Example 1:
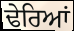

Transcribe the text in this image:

ਢੇਰਿਆਂ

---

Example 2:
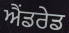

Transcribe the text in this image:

ਐਂਡਰੇਡ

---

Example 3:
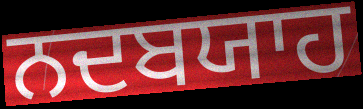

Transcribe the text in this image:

ਨਦਬਯਾਹ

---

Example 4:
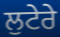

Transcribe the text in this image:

ਲੁਟੇਰੇ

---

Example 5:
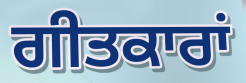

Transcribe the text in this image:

ਗੀਤਕਾਰਾਂ